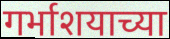
गर्भाशयाच्या